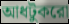
আধটুকরো